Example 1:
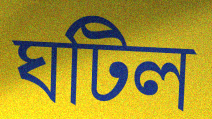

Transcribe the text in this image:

ঘটিল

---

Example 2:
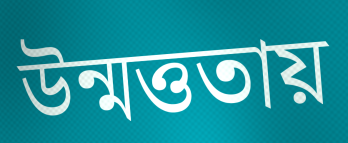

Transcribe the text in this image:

উন্মত্ততায়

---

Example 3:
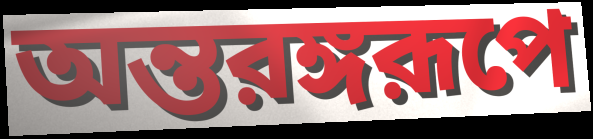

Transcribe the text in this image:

অন্তরঙ্গরূপে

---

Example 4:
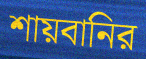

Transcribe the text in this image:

শায়বানির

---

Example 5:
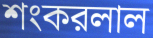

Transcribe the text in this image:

শংকরলাল